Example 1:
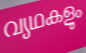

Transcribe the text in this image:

വ്യഥകളും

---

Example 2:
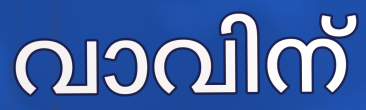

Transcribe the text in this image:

വാവിന്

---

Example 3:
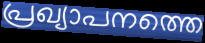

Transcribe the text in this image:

പ്രഖ്യാപനത്തെ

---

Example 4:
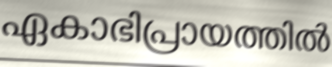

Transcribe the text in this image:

ഏകാഭിപ്രായത്തിൽ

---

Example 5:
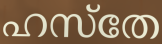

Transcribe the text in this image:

ഹസ്തേ